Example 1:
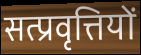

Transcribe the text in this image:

सत्प्रवृत्तियों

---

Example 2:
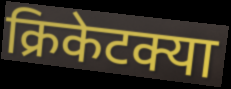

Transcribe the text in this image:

क्रिकेटक्या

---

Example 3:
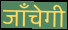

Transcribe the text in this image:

जाँचेगी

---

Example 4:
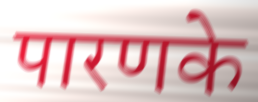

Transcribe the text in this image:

पारणके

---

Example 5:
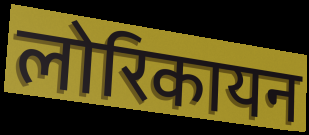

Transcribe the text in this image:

लोरिकायन